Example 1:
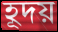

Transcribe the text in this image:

হূদয়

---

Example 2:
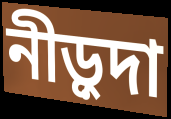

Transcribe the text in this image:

নীড়ুদা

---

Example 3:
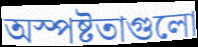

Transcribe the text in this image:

অস্পষ্টতাগুলো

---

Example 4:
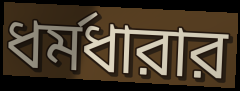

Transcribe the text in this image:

ধর্মধারার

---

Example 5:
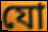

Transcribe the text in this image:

যো